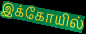
இக்கோயில்